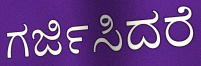
ಗರ್ಜಿಸಿದರೆ